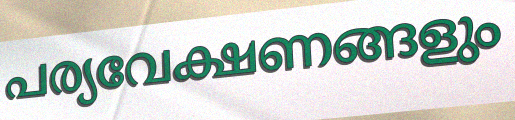
പര്യവേക്ഷണങ്ങളും